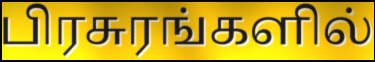
பிரசுரங்களில்